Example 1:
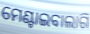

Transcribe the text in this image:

ମେଣ୍ଟାଇବାଲାଗି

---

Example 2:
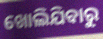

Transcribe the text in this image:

ଖୋଲିଯିବାରୁ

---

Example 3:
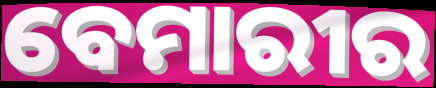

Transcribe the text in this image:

ବେମାରୀର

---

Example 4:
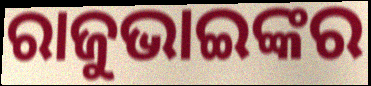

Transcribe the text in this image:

ରାଜୁଭାଇଙ୍କର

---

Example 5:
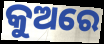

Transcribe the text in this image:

କୁଅରେ